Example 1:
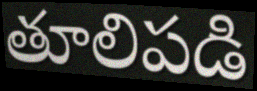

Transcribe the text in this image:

తూలిపడి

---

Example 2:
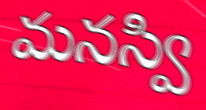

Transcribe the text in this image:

మనస్వి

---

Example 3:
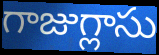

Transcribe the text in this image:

గాజుగ్లాసు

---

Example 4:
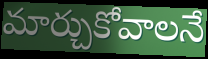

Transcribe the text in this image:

మార్చుకోవాలనే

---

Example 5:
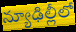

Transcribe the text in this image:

న్యూఢిల్లీలో